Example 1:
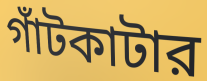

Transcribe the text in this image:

গাঁটকাটার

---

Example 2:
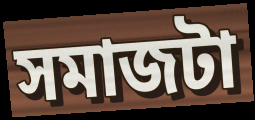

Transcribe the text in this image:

সমাজটা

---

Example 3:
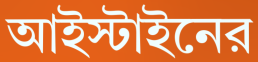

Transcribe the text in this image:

আইস্টাইনের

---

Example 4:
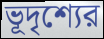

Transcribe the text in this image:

ভূদৃশ্যের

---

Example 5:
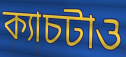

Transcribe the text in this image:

ক্যাচটাও